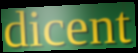
dicent